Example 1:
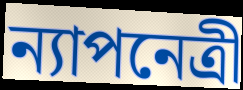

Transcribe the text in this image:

ন্যাপনেত্রী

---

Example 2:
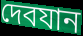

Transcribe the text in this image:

দেবযান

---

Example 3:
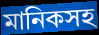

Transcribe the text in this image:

মানিকসহ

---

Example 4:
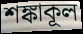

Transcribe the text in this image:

শঙ্কাকূল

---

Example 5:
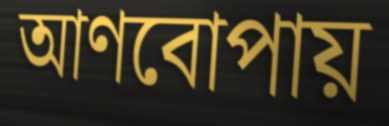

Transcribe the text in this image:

আণবোপায়